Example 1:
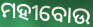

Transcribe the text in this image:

ମହୀବୋଉ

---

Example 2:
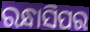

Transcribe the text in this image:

ରନ୍ଧାସିପର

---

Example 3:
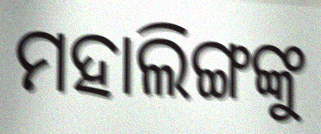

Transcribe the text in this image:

ମହାଲିଙ୍ଗଙ୍କୁ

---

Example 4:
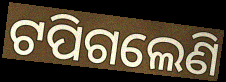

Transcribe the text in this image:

ଟପିଗଲେଣି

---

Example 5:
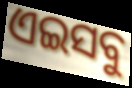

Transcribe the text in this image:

ଏଇସବୁ